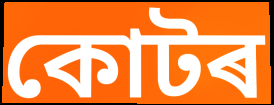
কোটৰ